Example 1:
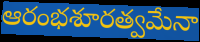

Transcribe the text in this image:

ఆరంభశూరత్వమేనా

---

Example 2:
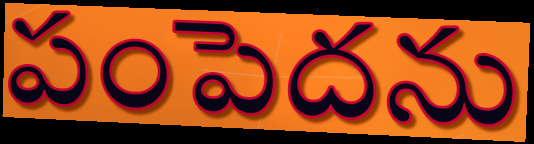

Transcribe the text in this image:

పంపెదను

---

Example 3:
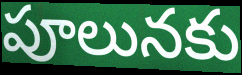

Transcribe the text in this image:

పూలునకు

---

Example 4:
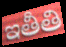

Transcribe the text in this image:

ఇతీతి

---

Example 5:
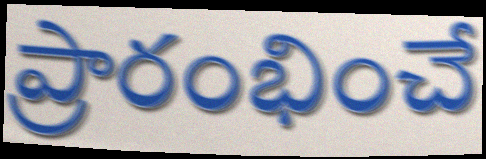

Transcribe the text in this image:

ప్రారంభించే